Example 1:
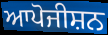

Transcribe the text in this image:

ਆਪੋਜੀਸ਼ਨ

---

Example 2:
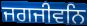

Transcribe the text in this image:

ਜਗਜੀਵਨਿ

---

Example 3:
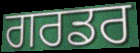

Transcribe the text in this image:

ਗਰਡਰ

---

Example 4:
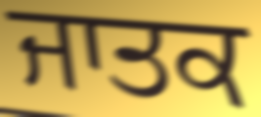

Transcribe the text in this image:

ਜਾਤਕ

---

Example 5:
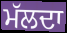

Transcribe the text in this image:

ਮੱਲਦਾ